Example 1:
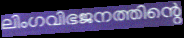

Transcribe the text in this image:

ലിംഗവിഭജനത്തിന്റെ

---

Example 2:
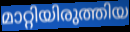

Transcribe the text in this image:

മാറ്റിയിരുത്തിയ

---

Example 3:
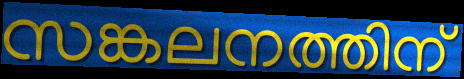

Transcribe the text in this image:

സങ്കലനത്തിന്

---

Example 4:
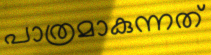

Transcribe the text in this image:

പാത്രമാകുന്നത്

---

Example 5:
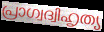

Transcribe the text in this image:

പ്രാഗ്വദ്വിഹൃത്യ